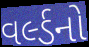
વર્લ્ડનો